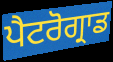
ਪੈਟਰੋਗ੍ਰਾਡ